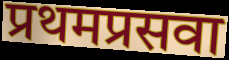
प्रथमप्रसवा